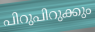
പിറുപിറുക്കും